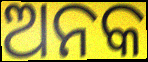
ଅନକ